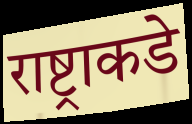
राष्ट्राकडे